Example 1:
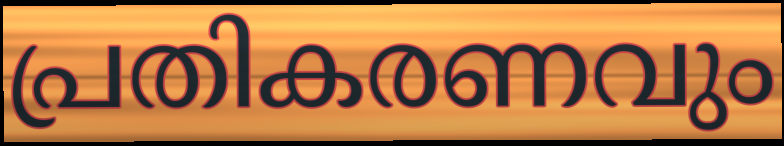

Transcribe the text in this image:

പ്രതികരണവും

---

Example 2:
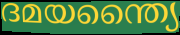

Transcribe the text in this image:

ദമയന്ത്യൈ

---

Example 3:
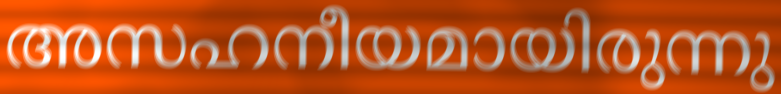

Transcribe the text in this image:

അസഹനീയമായിരുന്നു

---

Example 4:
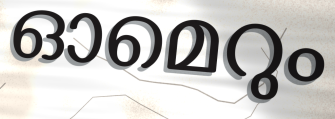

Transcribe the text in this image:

ഓമെറും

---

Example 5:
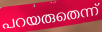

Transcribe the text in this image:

പറയരുതെന്ന്